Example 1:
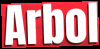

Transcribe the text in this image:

Arbol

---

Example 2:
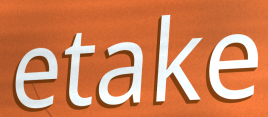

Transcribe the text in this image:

etake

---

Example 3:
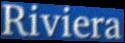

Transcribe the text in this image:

Riviera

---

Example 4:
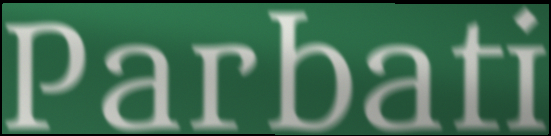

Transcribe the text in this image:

Parbati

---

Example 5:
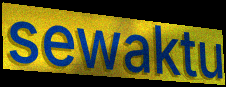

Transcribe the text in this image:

sewaktu